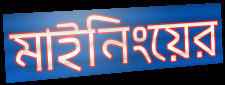
মাইনিংয়ের